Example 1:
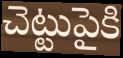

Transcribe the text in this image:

చెట్టుపైకి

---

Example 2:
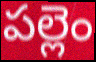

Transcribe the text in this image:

పల్లెం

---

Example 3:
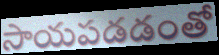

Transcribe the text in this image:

సాయపడడంతో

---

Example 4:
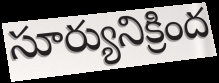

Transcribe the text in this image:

సూర్యునిక్రింద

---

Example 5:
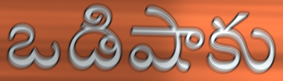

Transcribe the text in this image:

ఒడిషాకు